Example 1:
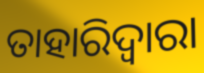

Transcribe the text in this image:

ତାହାରିଦ୍ଵାରା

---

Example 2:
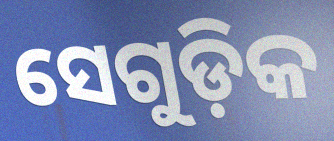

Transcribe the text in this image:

ସେଗୁଡ଼ିକ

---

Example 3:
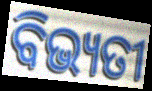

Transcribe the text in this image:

ବିଭ୍ୟତୀ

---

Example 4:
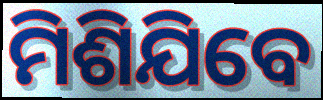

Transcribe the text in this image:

ମିଶିଯିବେ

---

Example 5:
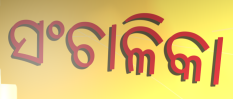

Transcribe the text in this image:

ସଂଚାଳିକା